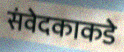
संवेदकाकडे